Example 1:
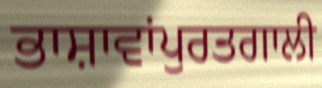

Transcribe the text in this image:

ਭਾਸ਼ਾਵਾਂਪੁਰਤਗਾਲੀ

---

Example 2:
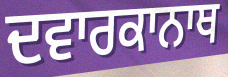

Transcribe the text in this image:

ਦਵਾਰਕਾਨਾਥ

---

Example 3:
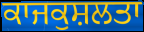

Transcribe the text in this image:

ਕਾਜਕੁਸ਼ਲਤਾ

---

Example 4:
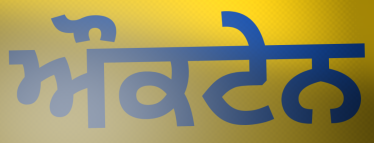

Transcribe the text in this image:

ਔਕਟੇਨ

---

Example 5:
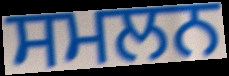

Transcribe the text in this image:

ਸਮਲਨ